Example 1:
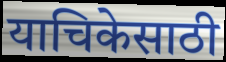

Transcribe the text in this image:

याचिकेसाठी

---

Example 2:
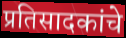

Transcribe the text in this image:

प्रतिसादकांचे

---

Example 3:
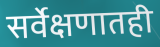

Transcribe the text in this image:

सर्वेक्षणातही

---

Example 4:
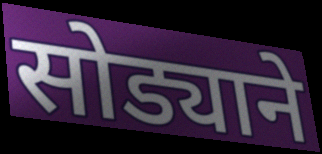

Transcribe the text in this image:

सोड्याने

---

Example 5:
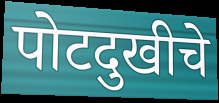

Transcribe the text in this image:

पोटदुखीचे